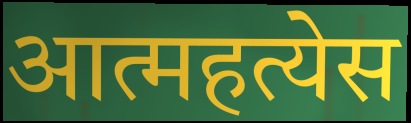
आत्महत्येस